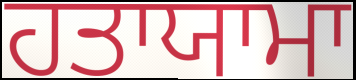
ਹਤਾਯਾਮਾ